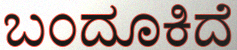
ಬಂದೂಕಿದೆ